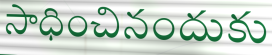
సాధించినందుకు